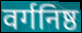
वर्गनिष्ठ